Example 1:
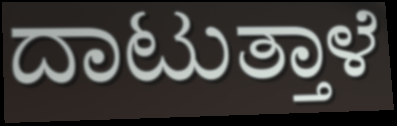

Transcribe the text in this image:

ದಾಟುತ್ತಾಳೆ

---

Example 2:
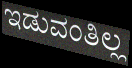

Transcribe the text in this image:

ಇಡುವಂತಿಲ್ಲ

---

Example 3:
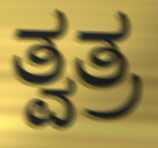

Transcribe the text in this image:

ತ್ವತ್ರ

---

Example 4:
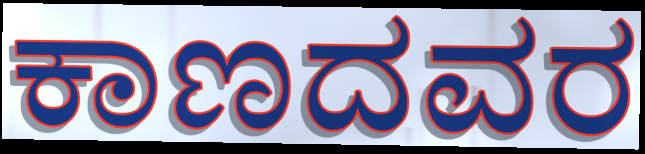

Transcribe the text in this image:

ಕಾಣದವರ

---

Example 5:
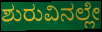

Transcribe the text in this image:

ಶುರುವಿನಲ್ಲೇ